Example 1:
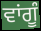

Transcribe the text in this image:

ਵਾਂਗੂੰ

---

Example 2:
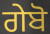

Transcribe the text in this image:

ਗੇਬੋ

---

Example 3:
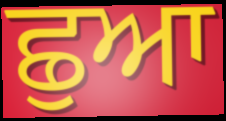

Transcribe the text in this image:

ਛੁਆ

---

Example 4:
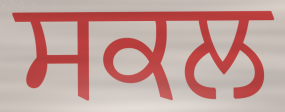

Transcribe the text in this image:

ਸਕਲ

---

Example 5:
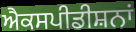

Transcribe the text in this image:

ਐਕਸਪੀਡੀਸ਼ਨਾਂ